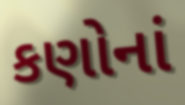
કણોનાં